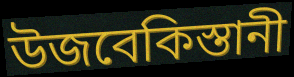
উজবেকিস্তানী